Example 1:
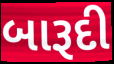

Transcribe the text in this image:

બારૂદી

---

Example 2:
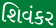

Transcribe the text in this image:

શિવંકર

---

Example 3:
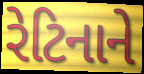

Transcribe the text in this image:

રેટિનાને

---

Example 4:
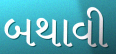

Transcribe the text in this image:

બથાવી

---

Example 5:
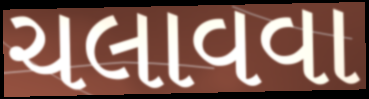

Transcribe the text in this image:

ચલાવવા